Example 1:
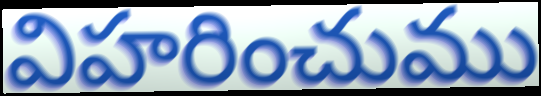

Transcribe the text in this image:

విహరించుము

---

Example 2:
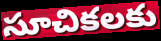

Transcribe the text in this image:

సూచికలకు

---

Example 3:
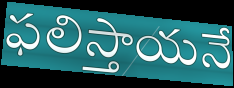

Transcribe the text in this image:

ఫలిస్తాయనే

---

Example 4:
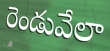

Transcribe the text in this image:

రెండువేలా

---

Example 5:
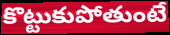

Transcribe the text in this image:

కొట్టుకుపోతుంటే